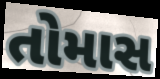
તોમાસ